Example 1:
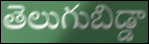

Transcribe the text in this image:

తెలుగుబిడ్డా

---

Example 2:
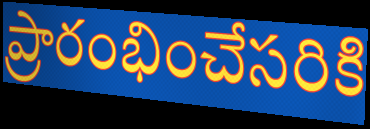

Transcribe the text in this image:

ప్రారంభించేసరికి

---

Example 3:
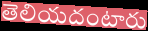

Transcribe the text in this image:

తెలియదంటారు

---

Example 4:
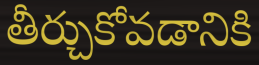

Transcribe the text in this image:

తీర్చుకోవడానికి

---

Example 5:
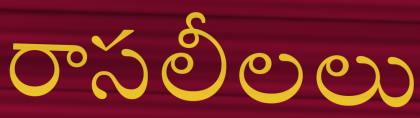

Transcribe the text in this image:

రాసలీలలు